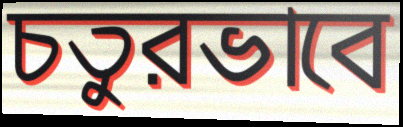
চতুরভাবে